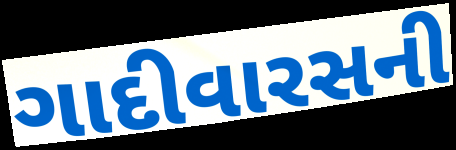
ગાદીવારસની